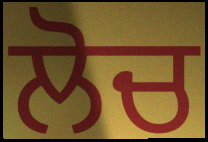
ਲੋਚ